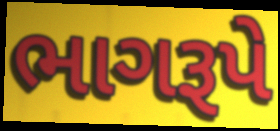
ભાગરૂપે